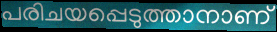
പരിചയപ്പെടുത്താനാണ്